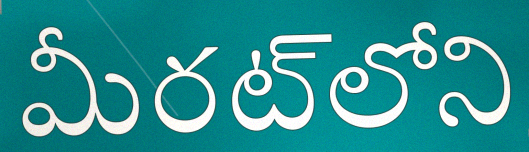
మీరట్‌లోని